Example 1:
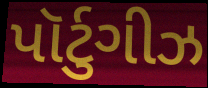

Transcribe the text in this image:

પૉર્ટુગીઝ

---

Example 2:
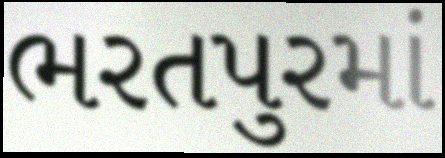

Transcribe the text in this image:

ભરતપુરમાં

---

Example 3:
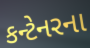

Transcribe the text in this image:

કન્ટેનરના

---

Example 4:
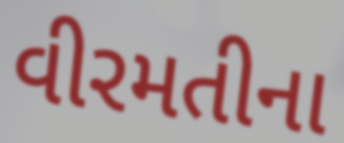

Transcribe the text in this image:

વીરમતીના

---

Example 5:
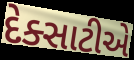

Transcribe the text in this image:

દેક્સાટીએ